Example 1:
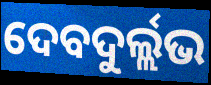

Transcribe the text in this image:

ଦେବଦୁର୍ଲ୍ଲଭ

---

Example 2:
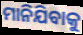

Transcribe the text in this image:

ମାନିଯିବାକୁ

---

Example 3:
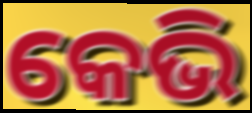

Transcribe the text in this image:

କେଭି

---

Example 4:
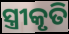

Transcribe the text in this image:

ସ୍ତ୍ରୀକୃତି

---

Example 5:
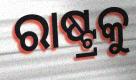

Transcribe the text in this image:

ରାଷ୍ଟ୍ରକୁ